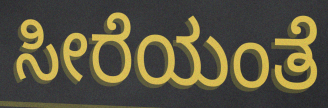
ಸೀರೆಯಂತೆ